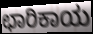
ಛಾರಿಕಾಯ